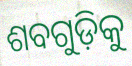
ଶବଗୁଡ଼ିକୁ